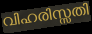
വിഹരിസ്സതി